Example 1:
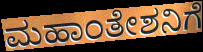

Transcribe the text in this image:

ಮಹಾಂತೇಶನಿಗೆ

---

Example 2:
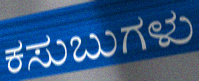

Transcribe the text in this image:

ಕಸುಬುಗಳು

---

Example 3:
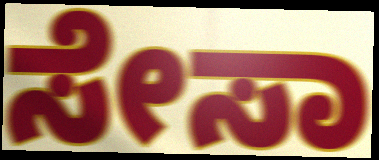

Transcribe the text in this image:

ಸೇಸಾ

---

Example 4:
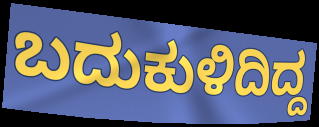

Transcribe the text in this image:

ಬದುಕುಳಿದಿದ್ದ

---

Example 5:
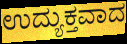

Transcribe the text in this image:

ಉದ್ಯುಕ್ತವಾದ